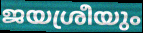
ജയശ്രീയും